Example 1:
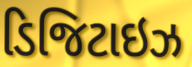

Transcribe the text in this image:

ડિજિટાઇઝ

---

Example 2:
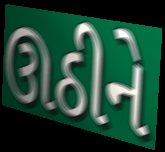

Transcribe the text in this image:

ઊઠીને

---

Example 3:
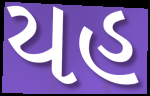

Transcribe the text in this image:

યહ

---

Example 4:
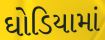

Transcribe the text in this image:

ઘોડિયામાં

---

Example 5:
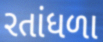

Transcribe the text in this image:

રતાંધળા